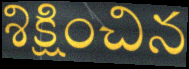
శిక్షించిన